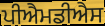
ਪੀਐਮਡੀਐਸ